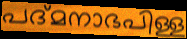
പദ്മനാഭപിള്ള